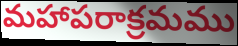
మహాపరాక్రమము